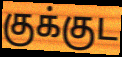
குக்குட